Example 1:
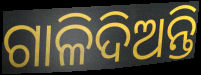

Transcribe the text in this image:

ଗାଳିଦିଅନ୍ତି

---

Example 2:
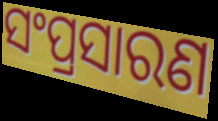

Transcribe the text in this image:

ସଂପ୍ରସାରଣ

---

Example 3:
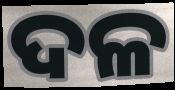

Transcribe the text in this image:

ଦଳ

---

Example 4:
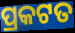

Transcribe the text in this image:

ପ୍ରକଟତ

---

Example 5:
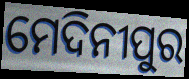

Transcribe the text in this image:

ମେଦିନୀପୁର